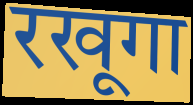
रखूगा